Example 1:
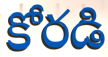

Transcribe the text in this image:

కోరడి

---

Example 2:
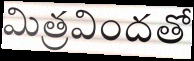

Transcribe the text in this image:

మిత్రవిందతో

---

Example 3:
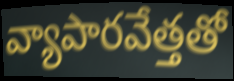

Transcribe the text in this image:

వ్యాపారవేత్తతో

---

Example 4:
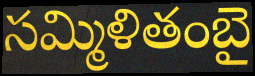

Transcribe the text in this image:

సమ్మిళితంబై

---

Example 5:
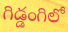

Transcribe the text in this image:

గిడ్డంగిలో